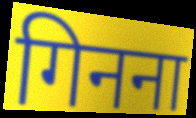
गिनना